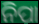
ନିପା